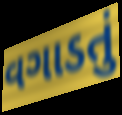
વગાડતું